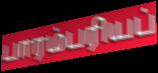
பாரம்பரியப்